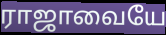
ராஜாவையே